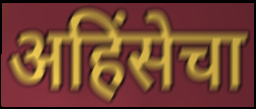
अहिंसेचा